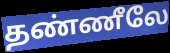
தண்ணீலே